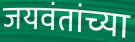
जयवंतांच्या